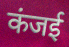
कंजई